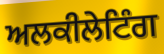
ਅਲਕੀਲੇਟਿੰਗ